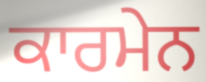
ਕਾਰਮੇਨ